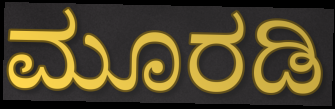
ಮೂರಡಿ